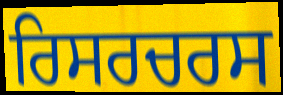
ਰਿਸਰਚਰਸ